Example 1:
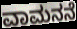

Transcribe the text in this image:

ವಾಮನನೆ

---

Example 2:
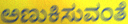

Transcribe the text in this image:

ಅಣುಕಿಸುವಂತೆ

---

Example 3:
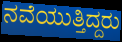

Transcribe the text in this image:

ನವೆಯುತ್ತಿದ್ದರು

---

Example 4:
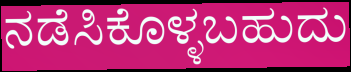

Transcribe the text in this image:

ನಡೆಸಿಕೊಳ್ಳಬಹುದು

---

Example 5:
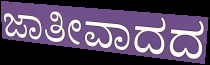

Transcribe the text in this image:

ಜಾತೀವಾದದ